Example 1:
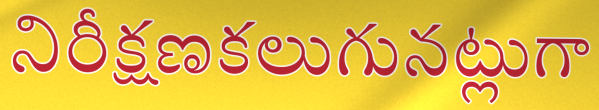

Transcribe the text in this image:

నిరీక్షణకలుగునట్లుగా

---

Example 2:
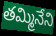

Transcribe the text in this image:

తమ్మినేని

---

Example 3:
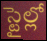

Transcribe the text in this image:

స్టైల్లో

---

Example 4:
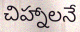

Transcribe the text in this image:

చిహ్నాలనే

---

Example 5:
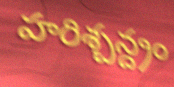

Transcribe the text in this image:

హరిశ్చన్ద్రం